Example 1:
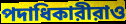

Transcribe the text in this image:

পদাধিকারীরাও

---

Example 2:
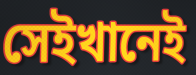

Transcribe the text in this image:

সেইখানেই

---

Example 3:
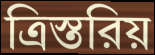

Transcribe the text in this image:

ত্রিস্তরিয়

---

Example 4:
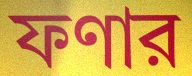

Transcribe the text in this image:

ফণার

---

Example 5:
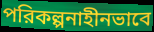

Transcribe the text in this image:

পরিকল্পনাহীনভাবে